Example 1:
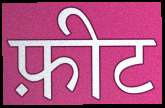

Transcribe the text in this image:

फ़ीट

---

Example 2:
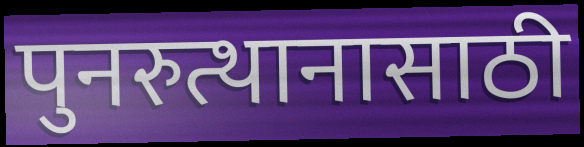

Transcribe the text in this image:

पुनरुत्थानासाठी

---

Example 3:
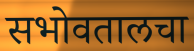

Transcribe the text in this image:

सभोवतालचा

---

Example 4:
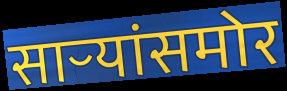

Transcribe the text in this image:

साऱ्यांसमोर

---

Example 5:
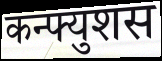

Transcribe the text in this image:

कन्फ्युशस